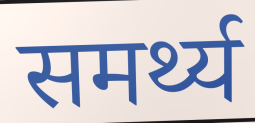
समर्थ्य